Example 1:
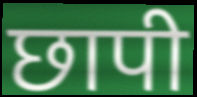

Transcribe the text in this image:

छापी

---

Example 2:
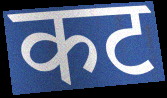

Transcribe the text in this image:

कट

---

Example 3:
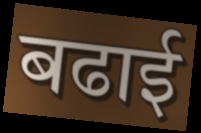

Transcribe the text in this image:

बढाई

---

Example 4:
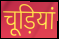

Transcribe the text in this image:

चूड़ियां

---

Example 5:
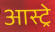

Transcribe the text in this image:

आस्ट्रे